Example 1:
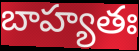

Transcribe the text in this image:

బాహ్యతః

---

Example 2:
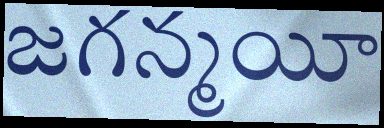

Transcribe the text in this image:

జగన్మయీ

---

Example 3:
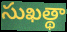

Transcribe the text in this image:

సుఖత్థా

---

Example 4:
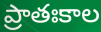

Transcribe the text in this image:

ప్రాతఃకాల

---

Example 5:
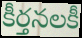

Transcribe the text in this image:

కీర్తనలకీ